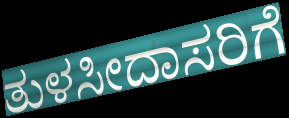
ತುಳಸೀದಾಸರಿಗೆ